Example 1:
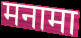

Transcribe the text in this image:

मनामा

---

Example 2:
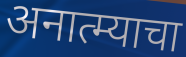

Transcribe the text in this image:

अनात्म्याचा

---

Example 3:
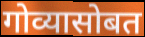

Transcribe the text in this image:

गोव्यासोबत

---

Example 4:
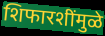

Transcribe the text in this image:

शिफारशींमुळे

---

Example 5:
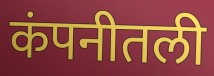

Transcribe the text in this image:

कंपनीतली